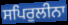
ਸਪਿਰੁਲੀਨਾ